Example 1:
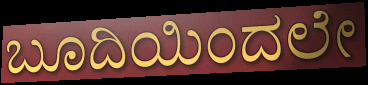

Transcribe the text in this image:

ಬೂದಿಯಿಂದಲೇ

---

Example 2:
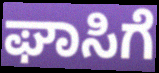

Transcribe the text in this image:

ಘಾಸಿಗೆ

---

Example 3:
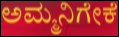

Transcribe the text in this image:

ಅಮ್ಮನಿಗೇಕೆ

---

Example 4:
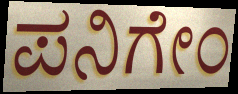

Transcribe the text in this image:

ಪನಿಗೇಂ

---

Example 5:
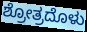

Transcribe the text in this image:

ಶ್ರೋತ್ರದೊಳು